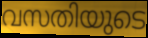
വസതിയുടെ